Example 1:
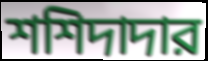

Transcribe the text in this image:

শশিদাদার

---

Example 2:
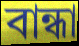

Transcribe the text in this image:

বান্ধা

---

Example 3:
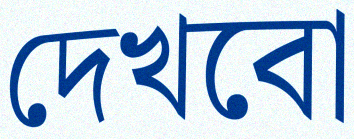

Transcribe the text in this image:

দেখবো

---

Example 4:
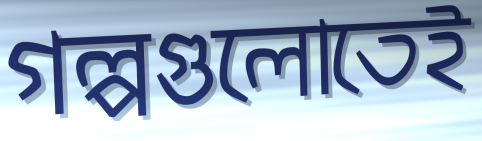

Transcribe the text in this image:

গল্পগুলোতেই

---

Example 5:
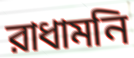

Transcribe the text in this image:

রাধামনি